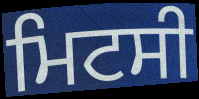
ਮਿਟਸੀ